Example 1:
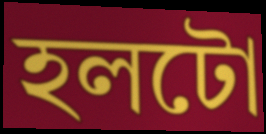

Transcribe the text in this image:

হলটো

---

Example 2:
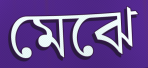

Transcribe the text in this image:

মেঝে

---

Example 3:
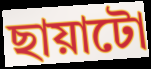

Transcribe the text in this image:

ছায়াটো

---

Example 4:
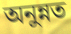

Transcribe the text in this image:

অনুন্নত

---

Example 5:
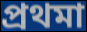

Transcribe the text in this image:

প্ৰথমা